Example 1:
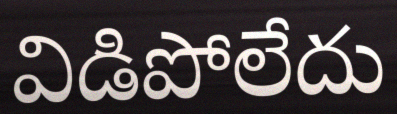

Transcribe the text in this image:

విడిపోలేదు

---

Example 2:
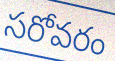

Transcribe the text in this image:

సరోవరం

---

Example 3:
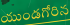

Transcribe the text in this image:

యుండగోరిన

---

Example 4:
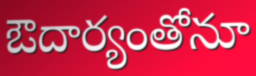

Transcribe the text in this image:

ఔదార్యంతోనూ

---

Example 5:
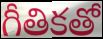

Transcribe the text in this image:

గీతికతో